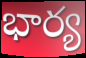
భార్య